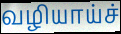
வழியாய்ச்